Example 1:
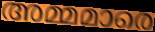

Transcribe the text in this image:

അമ്മമാരെ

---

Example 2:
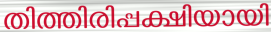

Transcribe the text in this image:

തിത്തിരിപ്പക്ഷിയായി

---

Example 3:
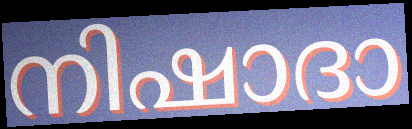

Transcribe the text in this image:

നിഷാദാ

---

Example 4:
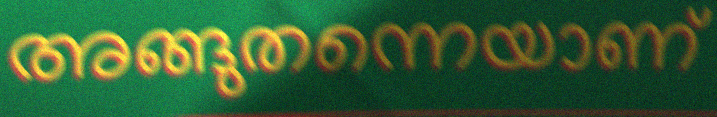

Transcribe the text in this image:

അങ്ങുതന്നെയാണ്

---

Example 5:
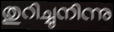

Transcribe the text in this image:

തുറിച്ചുനിന്നു